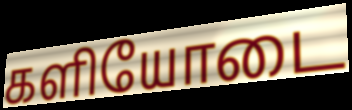
களியோடை